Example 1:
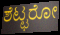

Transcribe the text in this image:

ಶೆಟ್ಟರೋ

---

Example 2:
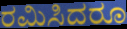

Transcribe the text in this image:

ರಮಿಸಿದರೂ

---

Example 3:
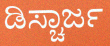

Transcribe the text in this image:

ಡಿಸ್ಚಾರ್ಜ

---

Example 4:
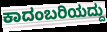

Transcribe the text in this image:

ಕಾದಂಬರಿಯದ್ದು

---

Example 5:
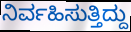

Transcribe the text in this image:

ನಿರ್ವಹಿಸುತ್ತಿದ್ದು